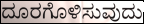
ದೂರಗೊಳಿಸುವುದು